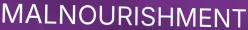
MALNOURISHMENT